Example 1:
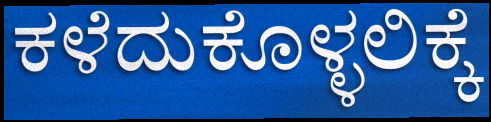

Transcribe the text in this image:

ಕಳೆದುಕೊಳ್ಳಲಿಕ್ಕೆ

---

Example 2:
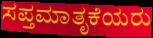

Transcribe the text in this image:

ಸಪ್ತಮಾತೃಕೆಯರು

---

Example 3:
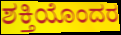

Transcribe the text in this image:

ಶಕ್ತಿಯೊಂದರ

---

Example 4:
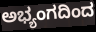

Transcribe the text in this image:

ಅಭ್ಯಂಗದಿಂದ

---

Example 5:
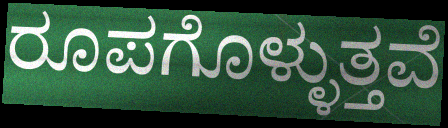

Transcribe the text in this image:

ರೂಪಗೊಳ್ಳುತ್ತವೆ